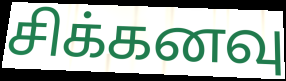
சிக்கனவு